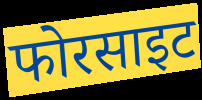
फोरसाइट